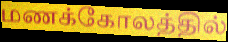
மணக்கோலத்தில்